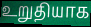
உறுதியாக